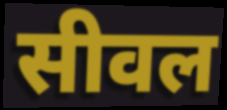
सीवल